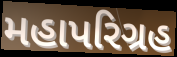
મહાપરિગ્રહ